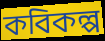
কবিকল্প